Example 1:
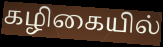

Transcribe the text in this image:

கழிகையில்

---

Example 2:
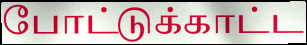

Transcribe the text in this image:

போட்டுக்காட்ட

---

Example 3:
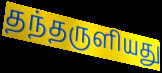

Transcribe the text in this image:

தந்தருளியது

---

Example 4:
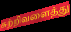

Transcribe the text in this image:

சுற்றிவளைத்து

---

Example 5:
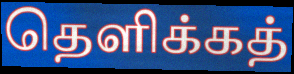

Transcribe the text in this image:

தெளிக்கத்